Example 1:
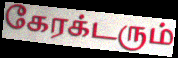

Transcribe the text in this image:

கேரக்டரும்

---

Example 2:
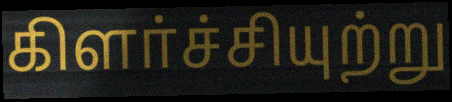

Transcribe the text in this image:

கிளர்ச்சியுற்று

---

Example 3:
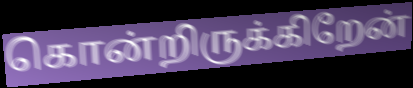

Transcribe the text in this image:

கொன்றிருக்கிறேன்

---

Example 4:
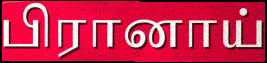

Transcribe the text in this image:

பிரானாய்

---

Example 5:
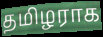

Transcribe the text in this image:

தமிழராக